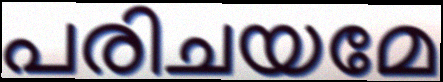
പരിചയമേ